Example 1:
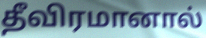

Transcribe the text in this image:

தீவிரமானால்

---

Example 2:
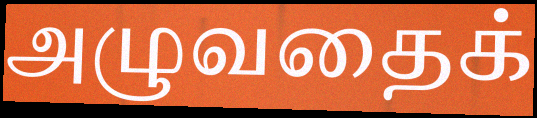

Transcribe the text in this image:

அழுவதைக்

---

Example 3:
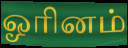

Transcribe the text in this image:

ஓரினம்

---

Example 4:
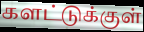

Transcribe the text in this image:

களட்டுக்குள்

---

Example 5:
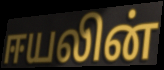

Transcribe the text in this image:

ஈயலின்